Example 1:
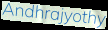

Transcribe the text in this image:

Andhrajyothy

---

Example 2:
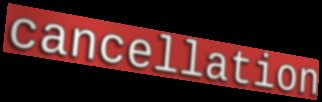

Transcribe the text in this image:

cancellation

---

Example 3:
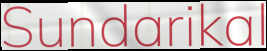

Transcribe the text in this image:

Sundarikal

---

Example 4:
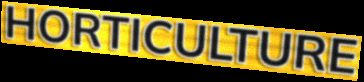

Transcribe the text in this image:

HORTICULTURE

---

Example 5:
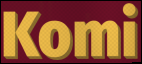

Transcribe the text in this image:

Komi